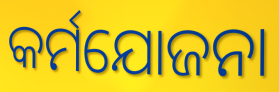
କର୍ମଯୋଜନା